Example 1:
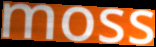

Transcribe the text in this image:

moss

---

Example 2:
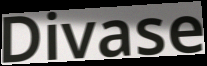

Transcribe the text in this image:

Divase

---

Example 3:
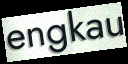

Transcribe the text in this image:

engkau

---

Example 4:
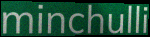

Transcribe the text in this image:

minchulli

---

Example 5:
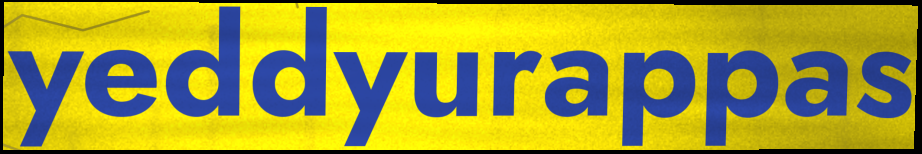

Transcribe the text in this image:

yeddyurappas